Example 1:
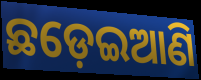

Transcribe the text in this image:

ଛଡ଼େଇଆଣି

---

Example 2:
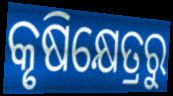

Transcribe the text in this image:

କୃଷିକ୍ଷେତ୍ରରୁ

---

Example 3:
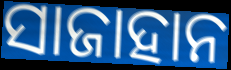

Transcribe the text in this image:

ସାଜାହାନ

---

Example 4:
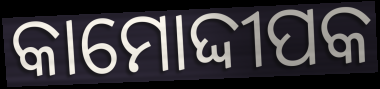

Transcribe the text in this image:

କାମୋଦ୍ଦୀପକ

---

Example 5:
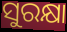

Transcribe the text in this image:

ସୁରକ୍ଷା